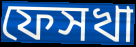
ফেসখা